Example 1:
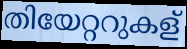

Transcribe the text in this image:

തിയേറ്ററുകള്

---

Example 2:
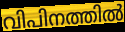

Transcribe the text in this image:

വിപിനത്തിൽ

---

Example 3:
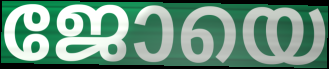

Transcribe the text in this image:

ജോയെ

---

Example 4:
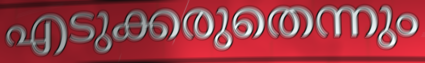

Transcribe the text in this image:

എടുക്കരുതെന്നും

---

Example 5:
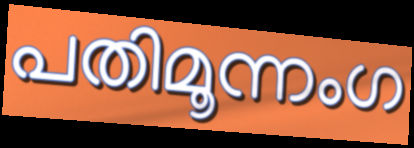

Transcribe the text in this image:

പതിമൂന്നംഗ